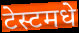
टेस्टमधे